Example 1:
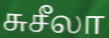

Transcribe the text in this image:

சுசீலா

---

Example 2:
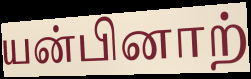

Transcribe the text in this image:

யன்பினாற்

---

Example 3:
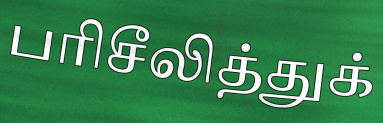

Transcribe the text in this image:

பரிசீலித்துக்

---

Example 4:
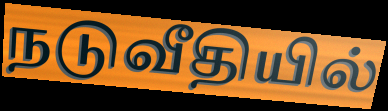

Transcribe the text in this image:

நடுவீதியில்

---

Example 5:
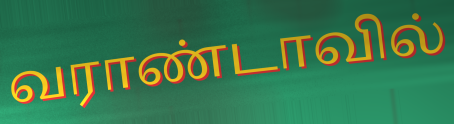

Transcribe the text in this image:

வராண்டாவில்